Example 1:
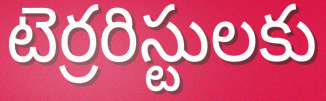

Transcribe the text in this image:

టెర్రరిస్టులకు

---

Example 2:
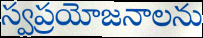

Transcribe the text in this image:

స్వప్రయోజనాలను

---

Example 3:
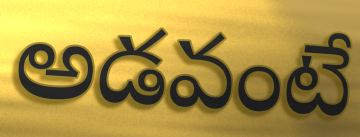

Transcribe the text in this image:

అడవంటే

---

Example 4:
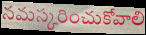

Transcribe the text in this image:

నమస్కరించుకోవాలి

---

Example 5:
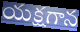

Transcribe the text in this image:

యక్షగాన